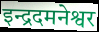
इन्द्रदमनेश्वर